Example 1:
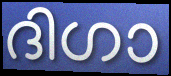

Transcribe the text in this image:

ദിഗാ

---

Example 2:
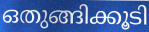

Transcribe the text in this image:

ഒതുങ്ങിക്കൂടി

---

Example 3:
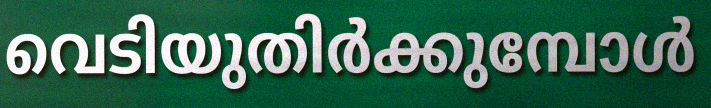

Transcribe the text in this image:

വെടിയുതിർക്കുമ്പോൾ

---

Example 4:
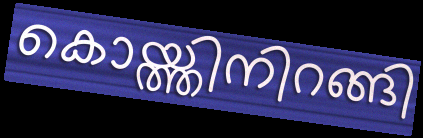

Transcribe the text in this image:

കൊയ്ത്തിനിറങ്ങി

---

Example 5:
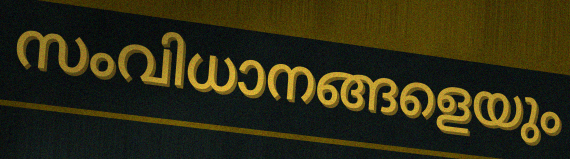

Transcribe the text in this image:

സംവിധാനങ്ങളെയും